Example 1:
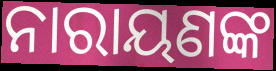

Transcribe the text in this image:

ନାରାୟଣଙ୍କ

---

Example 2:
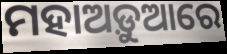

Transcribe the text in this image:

ମହାଅଡ଼ୁଆରେ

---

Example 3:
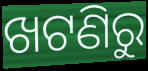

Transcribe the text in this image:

ଖଟଣିରୁ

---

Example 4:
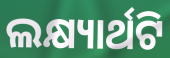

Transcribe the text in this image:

ଲକ୍ଷ୍ୟାର୍ଥଟି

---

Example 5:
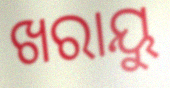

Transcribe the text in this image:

ଖରାୟୁ